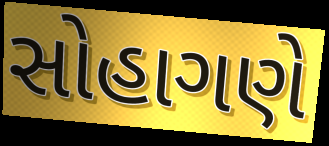
સોહાગણે